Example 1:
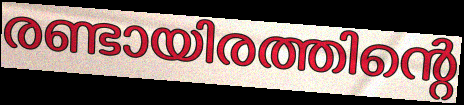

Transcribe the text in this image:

രണ്ടായിരത്തിന്റെ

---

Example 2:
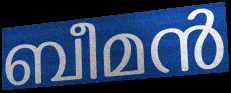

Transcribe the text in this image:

ബീമൻ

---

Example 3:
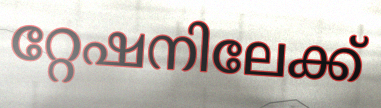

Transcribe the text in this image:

റ്റേഷനിലേക്ക്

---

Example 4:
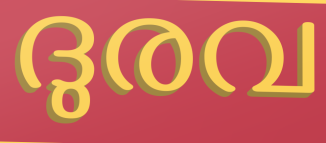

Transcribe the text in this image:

ദുരവ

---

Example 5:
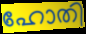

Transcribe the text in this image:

ഹോതി